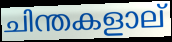
ചിന്തകളാല്